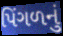
પિંગળનું